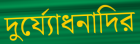
দুর্য্যোধনাদির